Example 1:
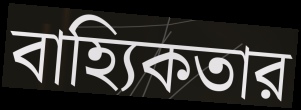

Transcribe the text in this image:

বাহ্যিকতার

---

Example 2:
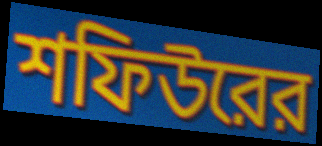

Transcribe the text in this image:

শফিউরের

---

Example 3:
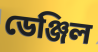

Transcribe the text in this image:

ডেঞ্জিল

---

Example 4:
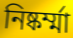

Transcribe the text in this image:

নিষ্কর্ম্মা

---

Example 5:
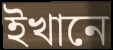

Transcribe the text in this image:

ইখানে